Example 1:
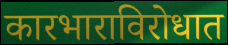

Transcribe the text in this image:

कारभाराविरोधात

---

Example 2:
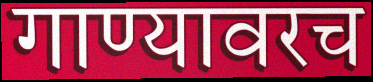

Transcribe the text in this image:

गाण्यावरच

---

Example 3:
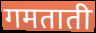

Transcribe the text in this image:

गमताती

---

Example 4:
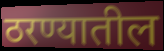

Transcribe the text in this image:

ठरण्यातील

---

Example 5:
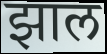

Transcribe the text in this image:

झाल